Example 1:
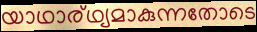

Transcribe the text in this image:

യാഥാര്ഥ്യമാകുന്നതോടെ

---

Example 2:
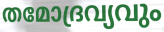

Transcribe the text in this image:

തമോദ്രവ്യവും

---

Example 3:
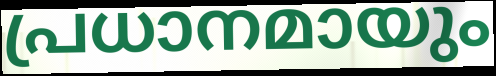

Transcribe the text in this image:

പ്രധാനമായും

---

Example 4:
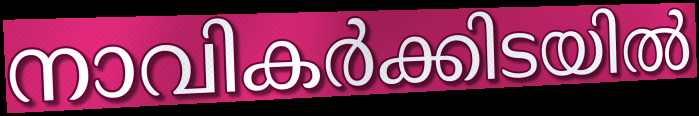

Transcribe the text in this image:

നാവികർക്കിടയിൽ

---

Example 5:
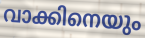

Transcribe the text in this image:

വാക്കിനെയും